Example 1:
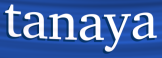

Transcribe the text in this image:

tanaya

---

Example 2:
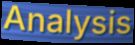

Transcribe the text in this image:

Analysis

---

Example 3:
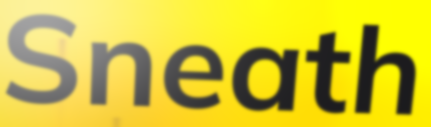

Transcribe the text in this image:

Sneath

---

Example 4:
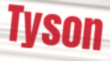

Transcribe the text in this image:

Tyson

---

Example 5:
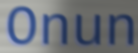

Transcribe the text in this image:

Onun